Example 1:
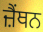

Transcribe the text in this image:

ਜ਼ੈਂਥਨ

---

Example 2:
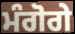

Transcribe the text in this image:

ਮੰਗੋਗੇ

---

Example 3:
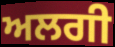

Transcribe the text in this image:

ਅਲਗੀ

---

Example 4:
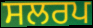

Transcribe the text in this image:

ਸਲਰਪ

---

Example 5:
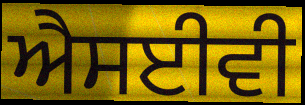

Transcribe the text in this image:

ਐਸਈਵੀ